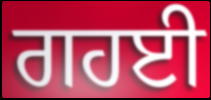
ਗਹਈ